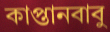
কাপ্তানবাবু